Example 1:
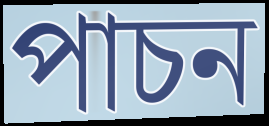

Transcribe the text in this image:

পাচন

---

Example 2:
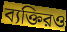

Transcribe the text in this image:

ব্যক্তিরও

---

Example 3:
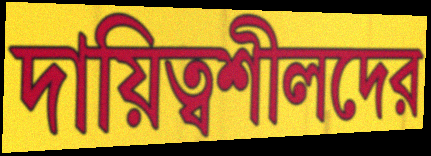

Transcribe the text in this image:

দায়িত্বশীলদের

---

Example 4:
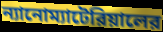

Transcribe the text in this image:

ন্যানোম্যাটেরিয়ালের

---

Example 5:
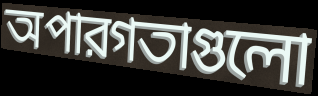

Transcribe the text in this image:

অপারগতাগুলো